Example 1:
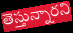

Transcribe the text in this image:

తెస్తున్నారని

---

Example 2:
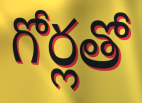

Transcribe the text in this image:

గోర్లతో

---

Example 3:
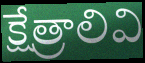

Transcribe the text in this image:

క్షేత్రాలివి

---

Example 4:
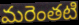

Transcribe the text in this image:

మరెంతటి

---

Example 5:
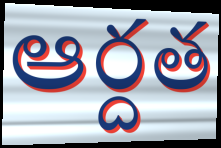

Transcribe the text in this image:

ఆర్దత